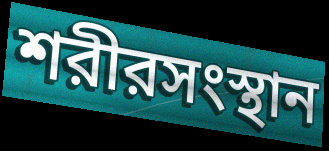
শরীরসংস্থান